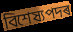
বিশেষ্যপদৰ